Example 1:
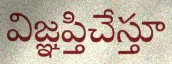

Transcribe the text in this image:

విజ్ఞప్తిచేస్తూ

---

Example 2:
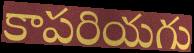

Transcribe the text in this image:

కాపరియగు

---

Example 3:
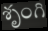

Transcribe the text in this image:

శృంగి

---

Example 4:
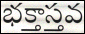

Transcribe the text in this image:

భక్తాస్తవ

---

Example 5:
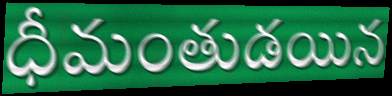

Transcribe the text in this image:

ధీమంతుడయిన